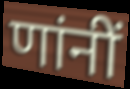
णांनीं